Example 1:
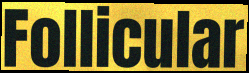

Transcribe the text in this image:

Follicular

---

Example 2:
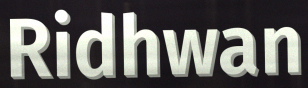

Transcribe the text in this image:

Ridhwan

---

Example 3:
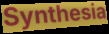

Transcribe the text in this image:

Synthesia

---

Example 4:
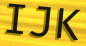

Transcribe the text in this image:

IJK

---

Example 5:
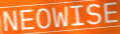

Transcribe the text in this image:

NEOWISE